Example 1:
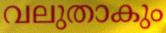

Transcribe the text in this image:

വലുതാകും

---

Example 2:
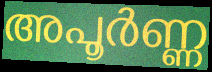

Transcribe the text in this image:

അപൂർണ്ണ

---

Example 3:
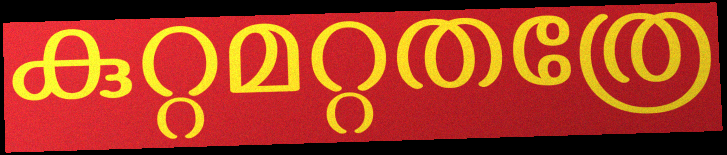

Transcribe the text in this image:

കുറ്റമറ്റതത്രേ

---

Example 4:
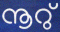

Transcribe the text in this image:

നൂറു്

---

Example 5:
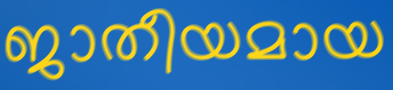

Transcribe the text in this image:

ജാതീയമായ